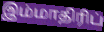
இம்மாதிரிப்